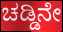
ಚಡ್ಡಿನೇ